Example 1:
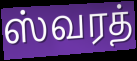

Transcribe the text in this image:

ஸ்வரத்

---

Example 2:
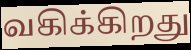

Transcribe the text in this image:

வகிக்கிறது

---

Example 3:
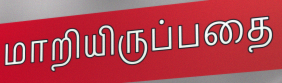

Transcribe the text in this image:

மாறியிருப்பதை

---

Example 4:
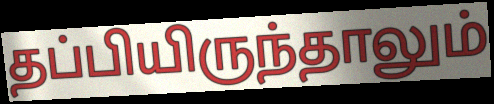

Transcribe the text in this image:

தப்பியிருந்தாலும்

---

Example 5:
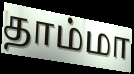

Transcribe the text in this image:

தாம்மா